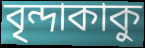
বৃন্দাকাকু